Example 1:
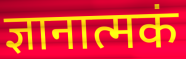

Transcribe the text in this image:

ज्ञानात्मकं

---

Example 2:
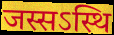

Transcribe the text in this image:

जस्सऽस्थि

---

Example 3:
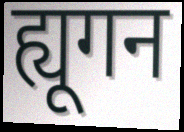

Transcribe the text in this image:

ह्यूगन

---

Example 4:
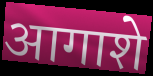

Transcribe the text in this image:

आगाशे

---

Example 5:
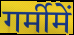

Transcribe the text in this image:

गर्मीमें